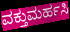
ವಕ್ತುಮರ್ಹಸಿ